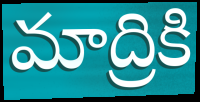
మాద్రికి